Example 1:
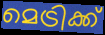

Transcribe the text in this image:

മെട്രിക്ക്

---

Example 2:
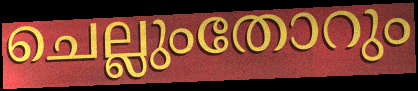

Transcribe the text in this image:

ചെല്ലുംതോറും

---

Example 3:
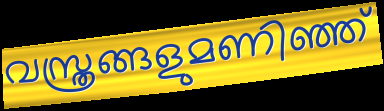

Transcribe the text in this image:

വസ്ത്രങ്ങളുമണിഞ്ഞ്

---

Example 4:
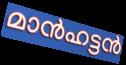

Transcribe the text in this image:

മാൻഹട്ടൻ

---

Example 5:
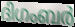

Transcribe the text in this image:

ദിഗംബർ